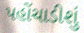
પહોંચાડીશું